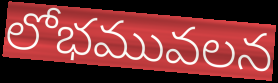
లోభమువలన